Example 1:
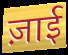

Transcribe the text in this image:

ज़ाई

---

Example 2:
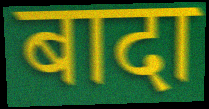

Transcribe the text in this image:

बादा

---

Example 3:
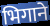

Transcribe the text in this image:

भिगाने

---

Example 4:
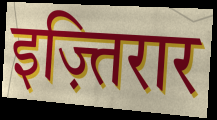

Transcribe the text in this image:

इज़्तिरार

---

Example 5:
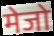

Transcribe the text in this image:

मेजो